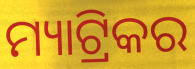
ମ୍ୟାଟ୍ରିକର